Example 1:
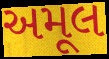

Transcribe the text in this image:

અમૂલ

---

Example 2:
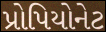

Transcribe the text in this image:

પ્રોપિયોનેટ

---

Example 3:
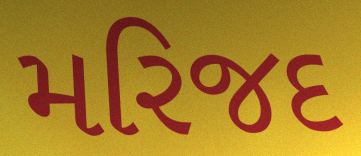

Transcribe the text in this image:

મરિજદ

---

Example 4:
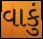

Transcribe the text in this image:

વાકું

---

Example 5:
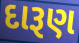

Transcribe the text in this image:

દારૂણ